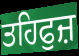
ਤਹਿਫੁਜ਼